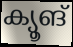
ക്യൂങ്